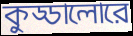
কুড্ডালোরে